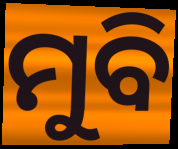
ମୁବି